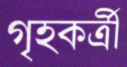
গৃহকর্ত্রী